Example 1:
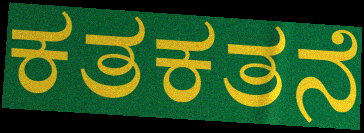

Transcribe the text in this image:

ಕತಕತನೆ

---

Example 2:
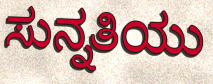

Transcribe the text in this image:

ಸುನ್ನತಿಯು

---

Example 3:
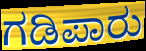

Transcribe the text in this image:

ಗಡಿಪಾರು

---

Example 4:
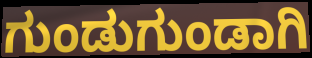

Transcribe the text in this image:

ಗುಂಡುಗುಂಡಾಗಿ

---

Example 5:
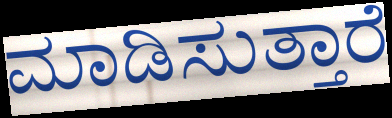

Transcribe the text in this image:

ಮಾಡಿಸುತ್ತಾರೆ